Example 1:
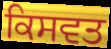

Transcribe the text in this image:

ਕਿਸਵਤ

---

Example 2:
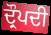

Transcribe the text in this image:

ਦ੍ਰੌਪਦੀ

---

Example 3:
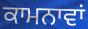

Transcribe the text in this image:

ਕਾਮਨਾਵਾਂ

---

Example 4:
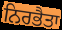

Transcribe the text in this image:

ਨਿਰਭੈਤਾ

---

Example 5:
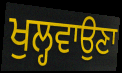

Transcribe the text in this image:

ਖੁਲ੍ਹਵਾਉਣਾ